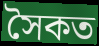
সৈকত